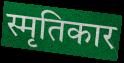
स्मृतिकार